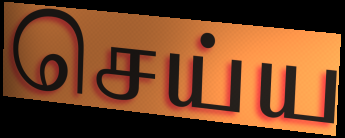
செய்ய